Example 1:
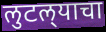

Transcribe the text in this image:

लुटल्याचा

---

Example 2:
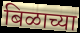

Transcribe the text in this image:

बिळाच्या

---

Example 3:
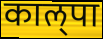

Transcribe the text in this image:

काल्पा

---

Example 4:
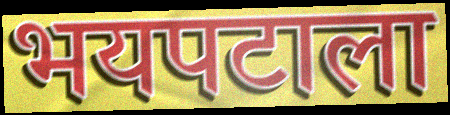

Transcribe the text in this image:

भयपटाला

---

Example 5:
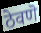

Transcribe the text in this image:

ठेवणॆ